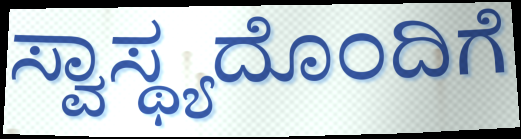
ಸ್ವಾಸ್ಥ್ಯದೊಂದಿಗೆ